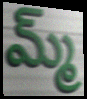
మ్మ్